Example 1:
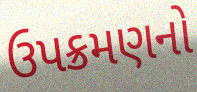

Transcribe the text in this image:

ઉપક્રમણનો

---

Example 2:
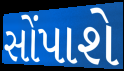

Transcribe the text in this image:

સોંપાશે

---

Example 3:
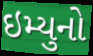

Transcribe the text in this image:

ઇમ્યુનો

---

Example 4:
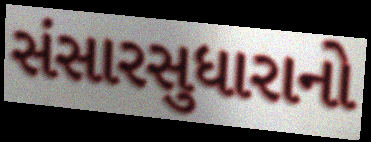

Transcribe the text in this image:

સંસારસુધારાનો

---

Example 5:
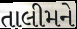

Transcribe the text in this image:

તાલીમને